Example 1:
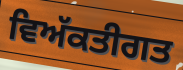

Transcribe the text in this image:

ਵਿਅੱਕਤੀਗਤ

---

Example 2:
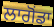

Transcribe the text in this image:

ਲਾਗੋਂਡਾ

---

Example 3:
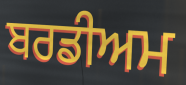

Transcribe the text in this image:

ਬਰਡੀਅਮ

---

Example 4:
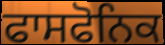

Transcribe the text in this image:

ਫਾਸਫੋਨਿਕ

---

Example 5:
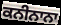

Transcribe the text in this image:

ਕਨੀਨਾਨਾ